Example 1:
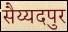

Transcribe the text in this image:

सैय्यदपुर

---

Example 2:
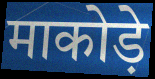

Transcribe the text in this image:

माकोड़े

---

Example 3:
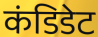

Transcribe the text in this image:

कंडिडेट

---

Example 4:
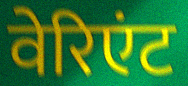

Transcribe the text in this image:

वेरिएंट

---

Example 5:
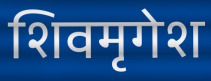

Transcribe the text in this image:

शिवमृगेश